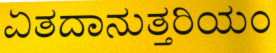
ಏತದಾನುತ್ತರಿಯಂ